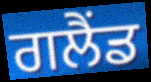
ਗਲੈਂਡ